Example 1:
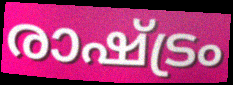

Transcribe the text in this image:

രാഷ്ട്രം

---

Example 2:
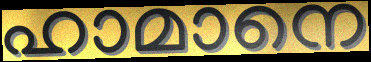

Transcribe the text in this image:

ഹാമാനെ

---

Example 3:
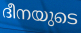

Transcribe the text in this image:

ദീനയുടെ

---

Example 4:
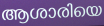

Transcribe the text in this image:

ആശാരിയെ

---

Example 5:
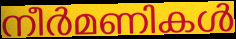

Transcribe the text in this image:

നീർമണികൾ